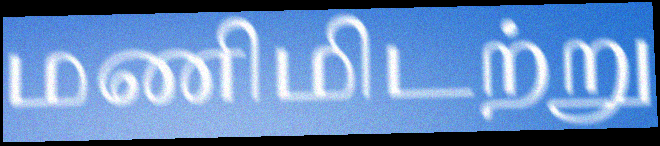
மணிமிடற்று